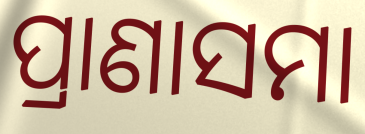
ପ୍ରାଣାସମା